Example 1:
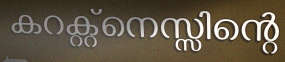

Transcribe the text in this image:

കറക്റ്റ്നെസ്സിന്റെ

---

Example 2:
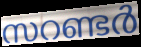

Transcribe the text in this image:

സറണ്ടർ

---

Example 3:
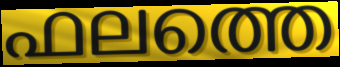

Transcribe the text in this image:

ഫലത്തെ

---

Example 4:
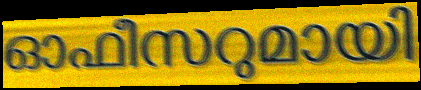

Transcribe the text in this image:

ഓഫീസറുമായി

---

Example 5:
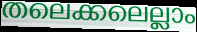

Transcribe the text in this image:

തലെക്കലെല്ലാം